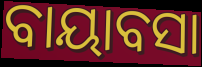
ବାୟାବସା